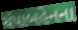
ચંપાબહેનના